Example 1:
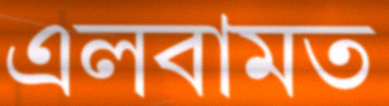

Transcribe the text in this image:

এলবামত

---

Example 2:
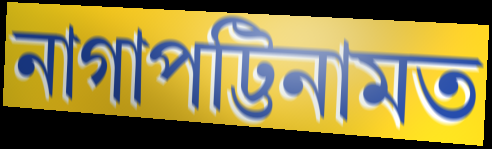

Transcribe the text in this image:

নাগাপট্টিনামত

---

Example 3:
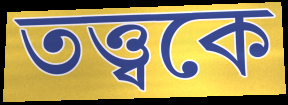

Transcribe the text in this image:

তত্ত্বকে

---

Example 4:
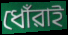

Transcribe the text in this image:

ধোঁৱাই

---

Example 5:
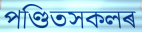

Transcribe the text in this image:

পণ্ডিতসকলৰ